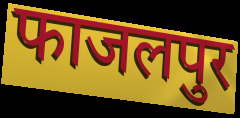
फाजलपुर